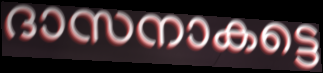
ദാസനാകട്ടെ